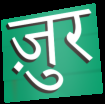
ज़ुर